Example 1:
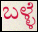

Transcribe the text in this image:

ಬಳ್ಳೆ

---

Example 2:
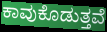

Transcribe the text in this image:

ಕಾವುಕೊಡುತ್ತವೆ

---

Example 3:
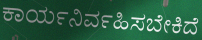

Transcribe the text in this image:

ಕಾರ್ಯನಿರ್ವಹಿಸಬೇಕಿದೆ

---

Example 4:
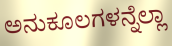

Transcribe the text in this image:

ಅನುಕೂಲಗಳನ್ನೆಲ್ಲಾ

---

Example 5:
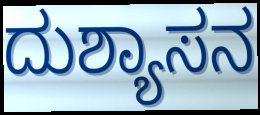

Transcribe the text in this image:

ದುಶ್ಯಾಸನ